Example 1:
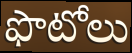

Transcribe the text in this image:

ఫొటోలు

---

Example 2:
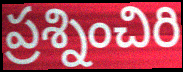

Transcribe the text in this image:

ప్రశ్నించిరి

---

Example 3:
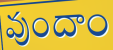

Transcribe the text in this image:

వుందాం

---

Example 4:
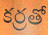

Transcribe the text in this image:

కర్రతో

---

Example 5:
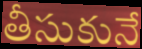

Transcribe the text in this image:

తీసుకునే